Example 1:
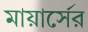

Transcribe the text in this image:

মায়ার্সের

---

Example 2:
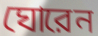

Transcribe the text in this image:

ঘোরেন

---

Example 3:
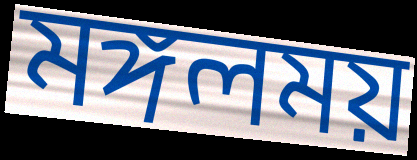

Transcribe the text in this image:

মঙ্গলময়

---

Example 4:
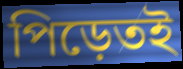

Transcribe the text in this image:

পিড়েতই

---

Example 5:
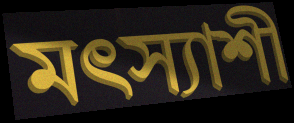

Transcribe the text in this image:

মৎস্যাশী